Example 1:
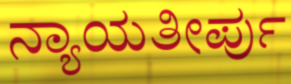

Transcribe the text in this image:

ನ್ಯಾಯತೀರ್ಪು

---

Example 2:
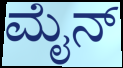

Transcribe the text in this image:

ಮೈನ್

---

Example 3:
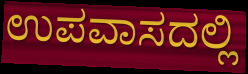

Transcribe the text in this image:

ಉಪವಾಸದಲ್ಲಿ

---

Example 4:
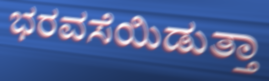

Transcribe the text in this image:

ಭರವಸೆಯಿಡುತ್ತಾ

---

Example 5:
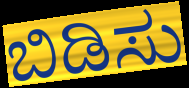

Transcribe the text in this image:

ಬಿಡಿಸು